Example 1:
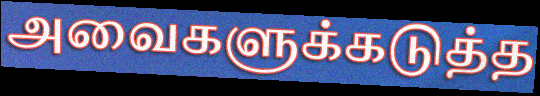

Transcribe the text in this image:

அவைகளுக்கடுத்த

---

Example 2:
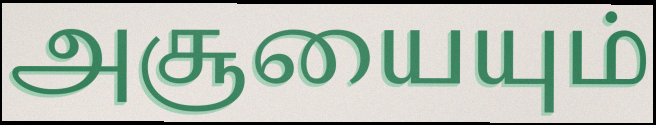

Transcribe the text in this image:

அசூயையும்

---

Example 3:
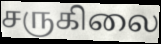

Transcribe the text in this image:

சருகிலை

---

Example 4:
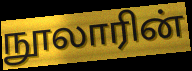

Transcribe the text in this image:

நூலாரின்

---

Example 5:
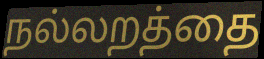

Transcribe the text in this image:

நல்லறத்தை